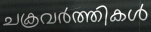
ചക്രവർത്തികൾ